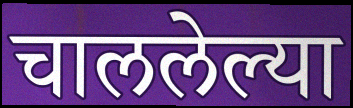
चाललेल्या